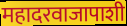
महादरवाजापाशी